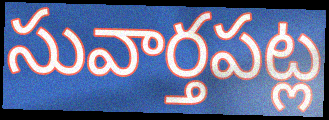
సువార్తపట్ల